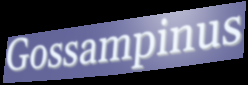
Gossampinus